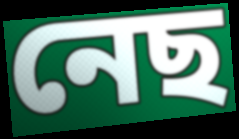
নেছ